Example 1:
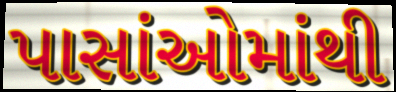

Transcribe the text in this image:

પાસાંઓમાંથી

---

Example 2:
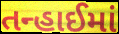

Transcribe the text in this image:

તન્હાઈમાં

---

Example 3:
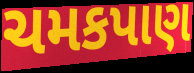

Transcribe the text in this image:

ચમકપાણ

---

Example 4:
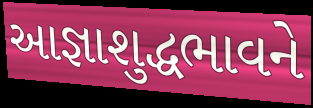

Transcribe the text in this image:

આજ્ઞાશુદ્ધભાવને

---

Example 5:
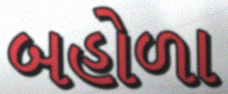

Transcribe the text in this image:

બહોળા